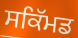
ਸਕਿੱਮਡ